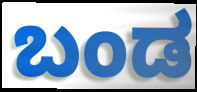
ಬಂಡ